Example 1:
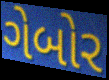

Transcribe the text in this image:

ગેબોર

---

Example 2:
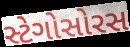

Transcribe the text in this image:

સ્ટેગોસોરસ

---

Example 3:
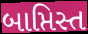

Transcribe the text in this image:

બાપ્તિસ્ત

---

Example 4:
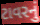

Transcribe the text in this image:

ટાવરનું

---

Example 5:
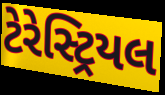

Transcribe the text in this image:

ટેરેસ્ટ્રિયલ